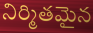
నిర్మితమైన